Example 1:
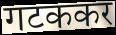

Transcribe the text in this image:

गटककर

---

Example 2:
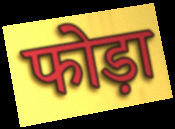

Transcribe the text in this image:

फोड़ा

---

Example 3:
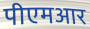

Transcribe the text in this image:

पीएमआर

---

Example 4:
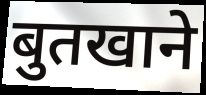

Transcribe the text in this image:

बुतखाने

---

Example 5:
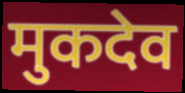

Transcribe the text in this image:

मुकदेव